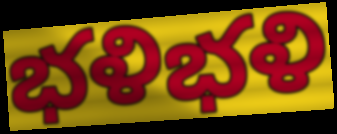
భళిభళి